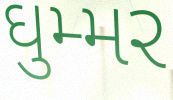
ઘુમ્મર